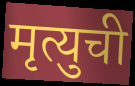
मृत्युची